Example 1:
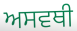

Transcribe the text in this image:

ਅਸਵਥੀ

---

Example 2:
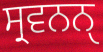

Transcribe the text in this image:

ਸ੍ਰਵਨਨੑ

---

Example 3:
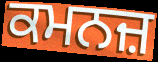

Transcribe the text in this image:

ਕਮਨਜ਼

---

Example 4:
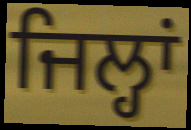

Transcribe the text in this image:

ਜਿਲ੍ਹਾਂ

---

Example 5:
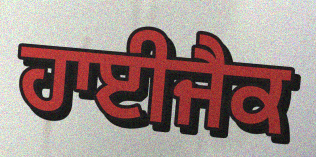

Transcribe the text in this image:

ਹਾਈਜੈਕ